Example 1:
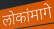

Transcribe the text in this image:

लोकांमागे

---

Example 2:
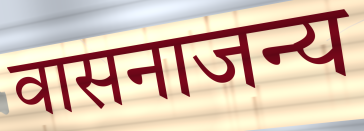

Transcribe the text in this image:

वासनाजन्य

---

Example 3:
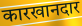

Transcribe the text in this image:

कारखानदार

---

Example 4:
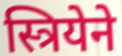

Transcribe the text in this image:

स्त्रियेने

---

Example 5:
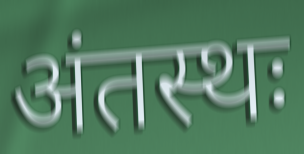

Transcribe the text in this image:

अंतस्थः